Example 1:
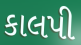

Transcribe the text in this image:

કાલપી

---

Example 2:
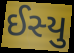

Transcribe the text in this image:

ઈસ્યુ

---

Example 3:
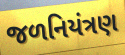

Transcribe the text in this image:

જળનિયંત્રણ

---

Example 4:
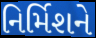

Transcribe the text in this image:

નિર્મિશને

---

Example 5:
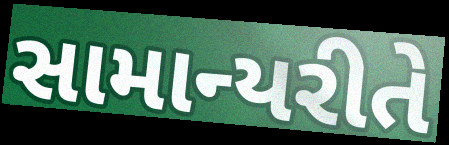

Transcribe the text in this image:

સામાન્યરીતે